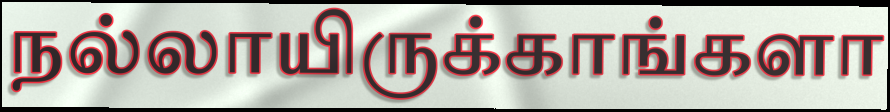
நல்லாயிருக்காங்களா